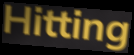
Hitting